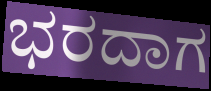
ಭರದಾಗ